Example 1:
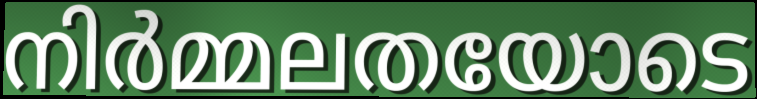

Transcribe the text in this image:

നിർമ്മലതയോടെ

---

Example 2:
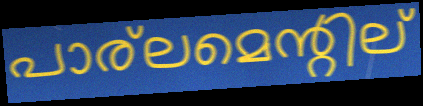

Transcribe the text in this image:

പാര്ലമെന്റില്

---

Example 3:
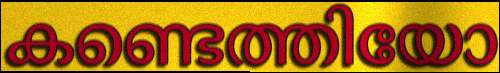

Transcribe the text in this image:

കണ്ടെത്തിയോ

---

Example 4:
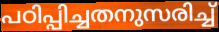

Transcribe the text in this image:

പഠിപ്പിച്ചതനുസരിച്ച്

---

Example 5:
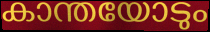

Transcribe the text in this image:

കാന്തയോടും